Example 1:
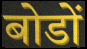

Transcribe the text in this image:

बोडों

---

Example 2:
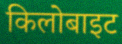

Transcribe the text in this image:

किलोबाइट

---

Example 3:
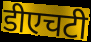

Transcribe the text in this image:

डीएचटी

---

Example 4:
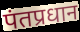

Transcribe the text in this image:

पंतप्रधान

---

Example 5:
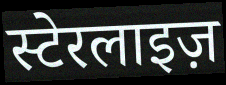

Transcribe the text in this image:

स्टेरलाइज़